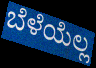
ಬೆಳೆಯೆಲ್ಲ